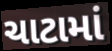
ચાટામાં